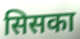
सिसका